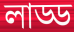
লাড্ড